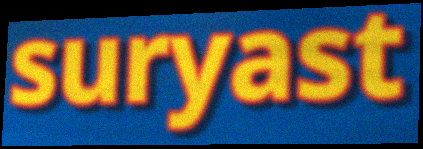
suryast